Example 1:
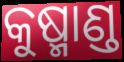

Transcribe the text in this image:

କୁଷ୍ମାଣ୍ଡ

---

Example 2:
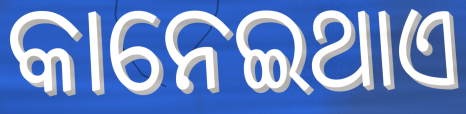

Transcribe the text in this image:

କାନେଇଥାଏ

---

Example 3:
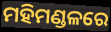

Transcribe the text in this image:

ମହିମଣ୍ଡଳରେ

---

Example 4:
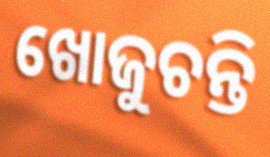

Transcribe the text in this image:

ଖୋଜୁଚନ୍ତି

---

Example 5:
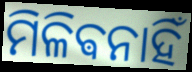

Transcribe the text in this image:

ମିଳିଵନାହିଁ